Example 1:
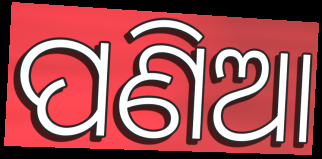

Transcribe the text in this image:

ପଣିଆ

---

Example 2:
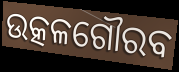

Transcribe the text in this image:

ଉତ୍କଳଗୌରବ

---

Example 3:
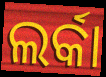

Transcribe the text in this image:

ଲର୍କା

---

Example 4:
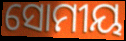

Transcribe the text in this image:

ସୋମୀୟ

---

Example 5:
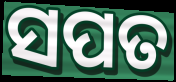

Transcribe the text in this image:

ସପତ